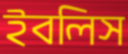
ইবলিস